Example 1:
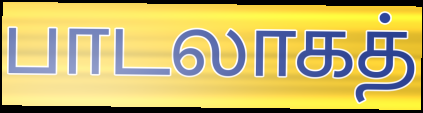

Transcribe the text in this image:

பாடலாகத்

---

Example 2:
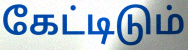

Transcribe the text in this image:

கேட்டிடும்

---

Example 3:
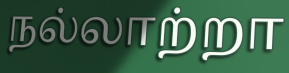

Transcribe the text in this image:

நல்லாற்றா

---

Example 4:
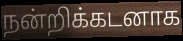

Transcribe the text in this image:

நன்றிக்கடனாக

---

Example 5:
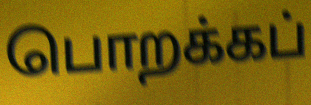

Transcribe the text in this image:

பொறக்கப்